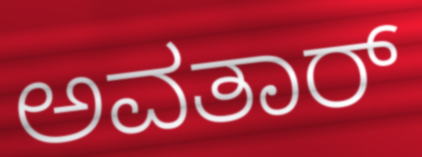
ಅವತಾರ್